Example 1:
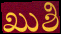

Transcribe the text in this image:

ಖುಶಿ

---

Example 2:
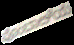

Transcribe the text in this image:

ಪೊಂಬಾೞೆಯ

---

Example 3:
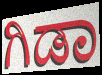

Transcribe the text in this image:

ಗಿಡಾ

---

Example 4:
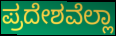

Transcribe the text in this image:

ಪ್ರದೇಶವೆಲ್ಲಾ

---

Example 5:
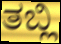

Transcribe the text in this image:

ತಬ್ಲಿ